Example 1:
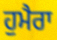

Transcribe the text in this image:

ਹੁਮੈਰਾ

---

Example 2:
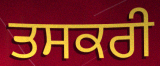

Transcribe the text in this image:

ਤਸਕਰੀ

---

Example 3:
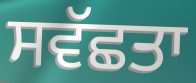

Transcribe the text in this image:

ਸਵੱਛਤਾ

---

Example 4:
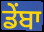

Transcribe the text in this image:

ਡੇਂਬਾ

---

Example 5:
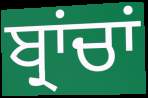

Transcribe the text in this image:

ਬ੍ਰਾਂਚਾਂ